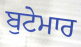
ਬੁਟੇਮਾਰ